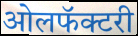
ओलफॅक्टरी